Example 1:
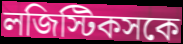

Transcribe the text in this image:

লজিস্টিকসকে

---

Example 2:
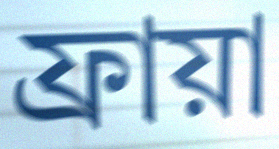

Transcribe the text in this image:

ফ্রায়া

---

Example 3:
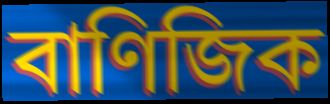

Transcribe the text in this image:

বাণিজিক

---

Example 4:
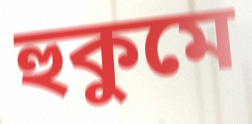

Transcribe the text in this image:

হুকুমে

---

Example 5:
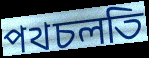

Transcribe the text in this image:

পথচলতি